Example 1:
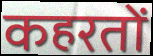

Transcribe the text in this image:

कहरतों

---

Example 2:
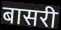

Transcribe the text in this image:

बासरी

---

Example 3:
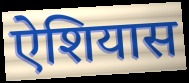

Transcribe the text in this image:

ऐशियास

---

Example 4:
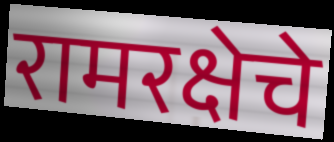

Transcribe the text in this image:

रामरक्षेचे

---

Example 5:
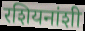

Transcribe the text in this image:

रशियनांशी